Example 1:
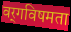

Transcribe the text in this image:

वर्गविषमता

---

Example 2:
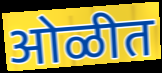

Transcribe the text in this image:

ओळीत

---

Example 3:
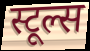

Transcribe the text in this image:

स्टूल्स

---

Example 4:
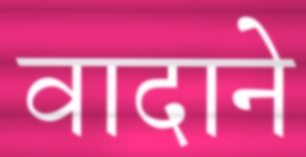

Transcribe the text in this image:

वादाने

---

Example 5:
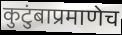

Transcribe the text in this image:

कुटुंबाप्रमाणेच